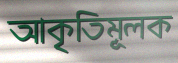
আকৃতিমূলক